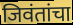
जिवंतांचा